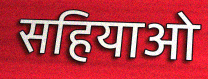
सहियाओ